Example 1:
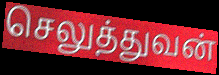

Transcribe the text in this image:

செலுத்துவன்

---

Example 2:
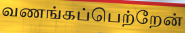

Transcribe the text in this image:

வணங்கப்பெற்றேன்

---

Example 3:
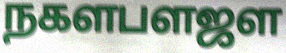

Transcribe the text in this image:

நகளபளஜள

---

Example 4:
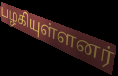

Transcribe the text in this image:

பழகியுள்ளனர்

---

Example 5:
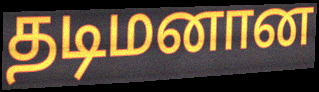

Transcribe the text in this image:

தடிமனான